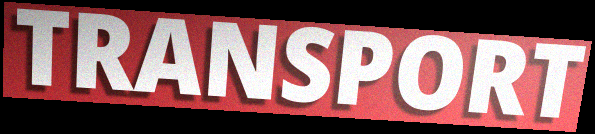
TRANSPORT